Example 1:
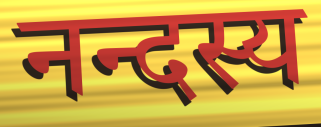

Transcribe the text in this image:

नन्दस्य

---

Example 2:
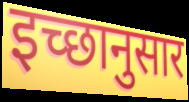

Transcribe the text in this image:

इच्‍छानुसार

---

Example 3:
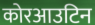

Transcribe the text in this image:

कोरआउटिन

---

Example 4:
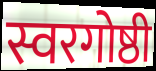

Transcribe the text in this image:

स्वरगोष्ठी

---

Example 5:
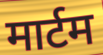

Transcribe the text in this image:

मार्टम